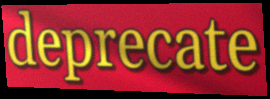
deprecate